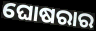
ଘୋଷରାର